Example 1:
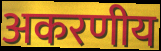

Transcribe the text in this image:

अकरणीय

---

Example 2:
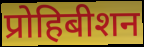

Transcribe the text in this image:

प्रोहिबीशन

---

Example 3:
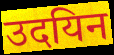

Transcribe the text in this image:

उदयिन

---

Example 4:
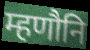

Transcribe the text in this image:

म्हणौनि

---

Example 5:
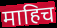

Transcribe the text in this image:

माहिच